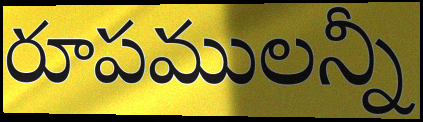
రూపములన్నీ